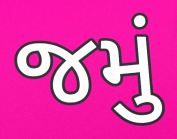
જમું